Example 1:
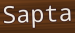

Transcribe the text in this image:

Sapta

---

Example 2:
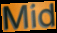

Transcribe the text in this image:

Mid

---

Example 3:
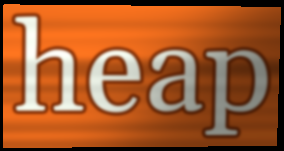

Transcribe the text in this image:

heap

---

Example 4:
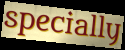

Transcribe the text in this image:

specially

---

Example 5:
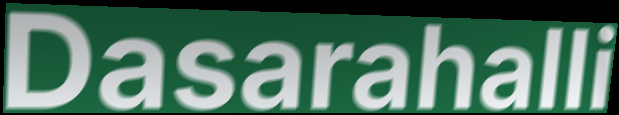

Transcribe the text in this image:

Dasarahalli